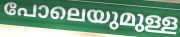
പോലെയുമുള്ള